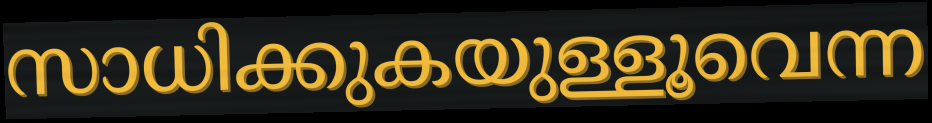
സാധിക്കുകയുള്ളൂവെന്ന